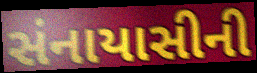
સંનાયાસીની